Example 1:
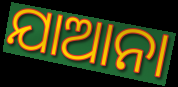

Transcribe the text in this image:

ଯାଆନା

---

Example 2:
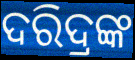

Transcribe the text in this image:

ଦରିଦ୍ରଙ୍କ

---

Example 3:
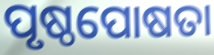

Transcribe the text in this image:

ପୃଷ୍ଠପୋଷତା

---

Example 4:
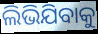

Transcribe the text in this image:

ଲିଭିଯିବାକୁ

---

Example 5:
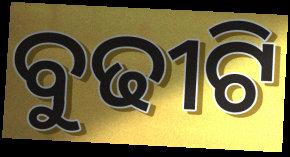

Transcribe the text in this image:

ବୁଢୀଟି